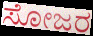
ಸೋಜರ